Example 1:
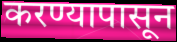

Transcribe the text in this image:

करण्यापासून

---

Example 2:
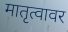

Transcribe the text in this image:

मातृत्वावर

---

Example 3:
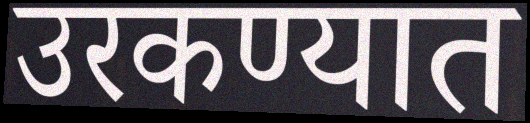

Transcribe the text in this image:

उरकण्यात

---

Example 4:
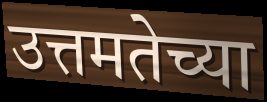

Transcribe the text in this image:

उत्तमतेच्या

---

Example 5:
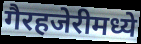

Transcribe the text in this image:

गैरहजेरीमध्ये